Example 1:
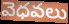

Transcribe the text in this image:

వెధవలు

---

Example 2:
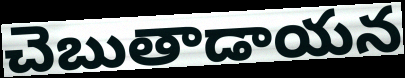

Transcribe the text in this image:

చెబుతాడాయన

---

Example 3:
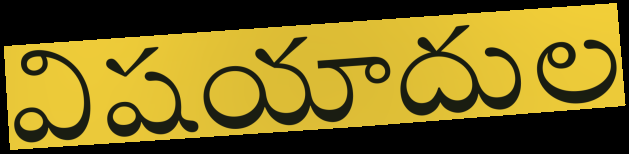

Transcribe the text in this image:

విషయాదుల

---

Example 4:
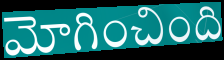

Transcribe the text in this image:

మోగించింది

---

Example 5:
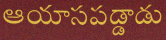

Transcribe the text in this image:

ఆయాసపడ్డాడు